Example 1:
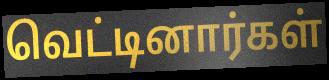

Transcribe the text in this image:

வெட்டினார்கள்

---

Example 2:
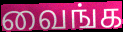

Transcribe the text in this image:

வைங்க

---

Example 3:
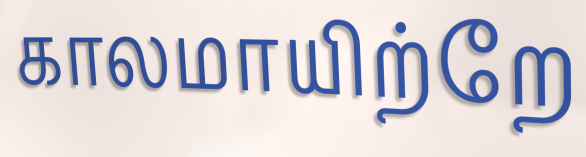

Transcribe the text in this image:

காலமாயிற்றே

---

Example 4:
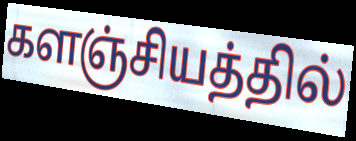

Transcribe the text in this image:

களஞ்சியத்தில்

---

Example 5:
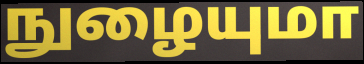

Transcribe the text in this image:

நுழையுமா